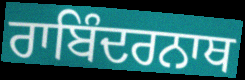
ਰਾਬਿੰਦਰਨਾਥ